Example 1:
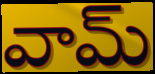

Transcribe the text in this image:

వామ్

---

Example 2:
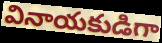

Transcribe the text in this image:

వినాయకుడిగా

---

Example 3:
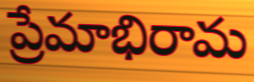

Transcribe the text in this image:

ప్రేమాభిరామ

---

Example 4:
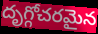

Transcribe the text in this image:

దృగ్గోచరమైన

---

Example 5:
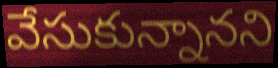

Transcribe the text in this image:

వేసుకున్నానని